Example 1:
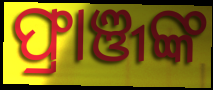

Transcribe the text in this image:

ଫ୍ରାଞ୍ଜଙ୍କ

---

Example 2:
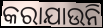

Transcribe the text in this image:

କରାଯାଉନି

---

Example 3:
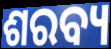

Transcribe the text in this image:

ଶରବ୍ୟ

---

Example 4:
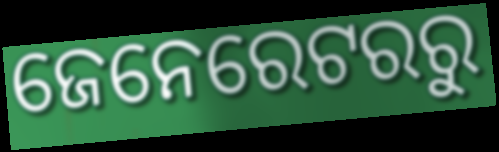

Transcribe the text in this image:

ଜେନେରେଟରରୁ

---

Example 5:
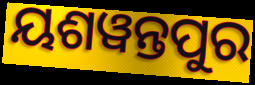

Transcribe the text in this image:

ୟଶୱନ୍ତପୁର